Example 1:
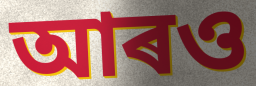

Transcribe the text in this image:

আৰও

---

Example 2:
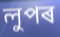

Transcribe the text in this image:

লুপৰ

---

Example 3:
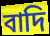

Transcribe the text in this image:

বাদি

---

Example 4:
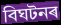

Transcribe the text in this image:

বিঘটনৰ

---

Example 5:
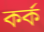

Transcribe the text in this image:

কৰ্ক